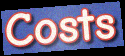
Costs